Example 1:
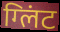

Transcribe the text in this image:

ग्लिंट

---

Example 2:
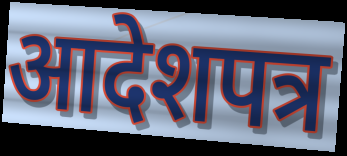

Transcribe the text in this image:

आदेशपत्र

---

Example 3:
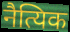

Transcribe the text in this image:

नैत्यिक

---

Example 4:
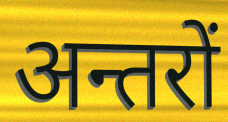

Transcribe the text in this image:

अन्तरों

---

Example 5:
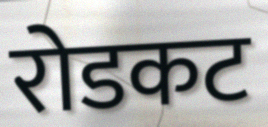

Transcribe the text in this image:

रोडकट